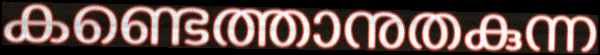
കണ്ടെത്താനുതകുന്ന